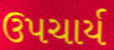
ઉપચાર્ય